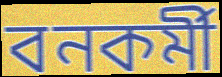
বনকর্মী